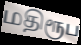
மதிரூப